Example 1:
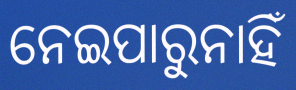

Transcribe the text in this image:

ନେଇପାରୁନାହିଁ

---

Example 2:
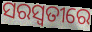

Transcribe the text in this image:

ସରସ୍ୱତୀରେ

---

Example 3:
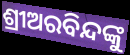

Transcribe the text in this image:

ଶ୍ରୀଅରବିନ୍ଦଙ୍କୁ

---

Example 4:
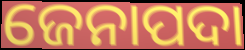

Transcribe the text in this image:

ଜେନାପଦା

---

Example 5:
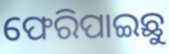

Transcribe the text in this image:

ଫେରିପାଇଛୁ